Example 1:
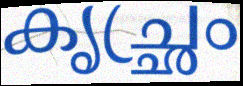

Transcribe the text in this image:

കൃച്ഛ്രം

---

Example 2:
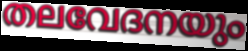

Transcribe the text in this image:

തലവേദനയും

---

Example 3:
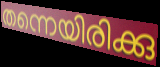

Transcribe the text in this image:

തന്നെയിരിക്കു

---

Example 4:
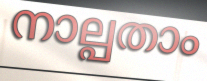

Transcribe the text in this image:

നാല്പതാം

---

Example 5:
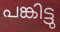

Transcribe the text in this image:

പങ്കിട്ടു